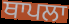
ਥਾਪਲਾ